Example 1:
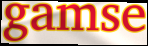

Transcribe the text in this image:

gamse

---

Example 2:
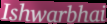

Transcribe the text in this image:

Ishwarbhai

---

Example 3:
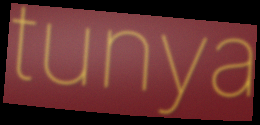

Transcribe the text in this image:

tunya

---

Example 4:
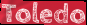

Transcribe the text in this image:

Toledo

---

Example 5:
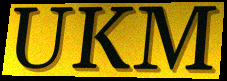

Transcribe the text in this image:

UKM